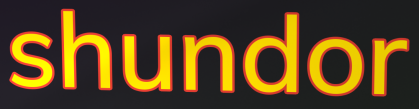
shundor